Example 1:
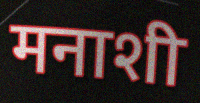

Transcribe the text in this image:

मनाशी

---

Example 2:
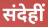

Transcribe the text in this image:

संदेहीं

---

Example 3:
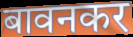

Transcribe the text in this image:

बावनकर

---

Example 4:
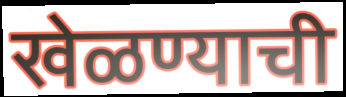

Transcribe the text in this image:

खेळण्याची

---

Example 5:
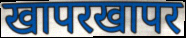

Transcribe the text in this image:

खापरखापर